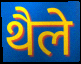
थैले